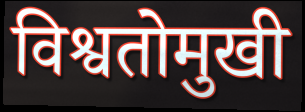
विश्वतोमुखी